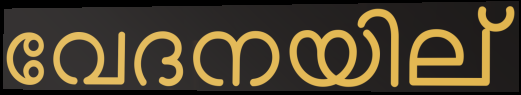
വേദനയില്